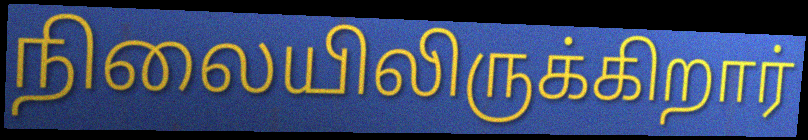
நிலையிலிருக்கிறார்